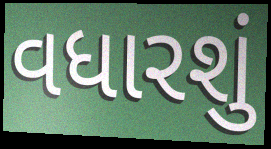
વધારશું